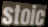
stoic